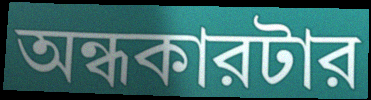
অন্ধকারটার